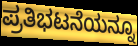
ಪ್ರತಿಭಟನೆಯನ್ನೂ